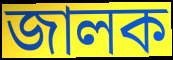
জালক